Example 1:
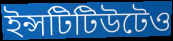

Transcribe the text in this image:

ইন্সটিটিউটেও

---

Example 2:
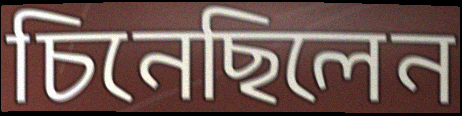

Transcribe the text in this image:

চিনেছিলেন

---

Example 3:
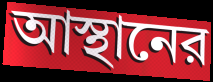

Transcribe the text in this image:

আস্থানের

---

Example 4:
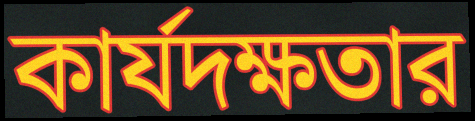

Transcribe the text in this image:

কার্যদক্ষতার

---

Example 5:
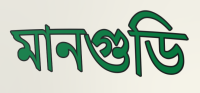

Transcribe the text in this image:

মানগুডি